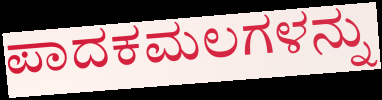
ಪಾದಕಮಲಗಳನ್ನು